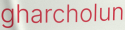
gharcholun